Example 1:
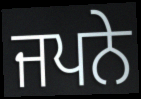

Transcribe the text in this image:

ਜਪਨੇ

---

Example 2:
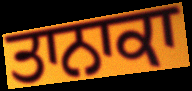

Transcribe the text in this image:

ਤਾਨਾਕਾ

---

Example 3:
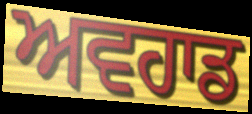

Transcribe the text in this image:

ਅਵਹਾਡ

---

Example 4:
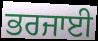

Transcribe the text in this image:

ਭਰਜਾਈ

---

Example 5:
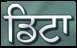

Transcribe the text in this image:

ਡਿਟਾ